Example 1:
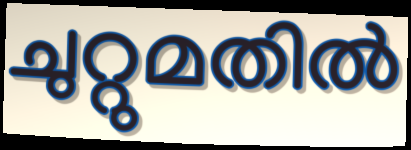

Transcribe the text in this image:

ചുറ്റുമതിൽ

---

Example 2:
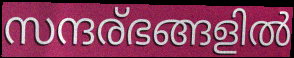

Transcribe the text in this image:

സന്ദര്ഭങ്ങളിൽ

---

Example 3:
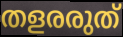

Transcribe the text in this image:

തളരരുത്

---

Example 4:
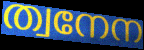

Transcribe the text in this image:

ത്വനേന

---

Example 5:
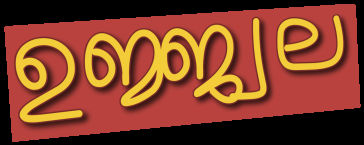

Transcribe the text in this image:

ഉജ്ജ്വല